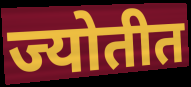
ज्योतीत